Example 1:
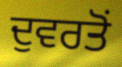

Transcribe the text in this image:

ਦੁਵਰਤੋਂ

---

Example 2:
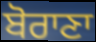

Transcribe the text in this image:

ਬੋਰਾਣਾ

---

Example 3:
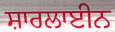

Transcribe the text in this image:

ਸ਼ਾਰਲਾਈਨ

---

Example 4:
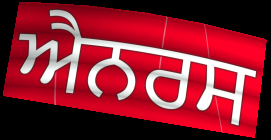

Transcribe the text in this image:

ਐਨਰਸ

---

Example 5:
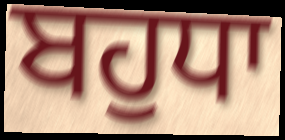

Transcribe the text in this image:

ਬਹੁਧਾ